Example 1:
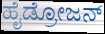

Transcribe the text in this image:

ಹೈಡ್ರೋಜನ್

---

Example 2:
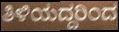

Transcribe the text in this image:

ತಿಳಿಯದ್ದರಿಂದ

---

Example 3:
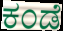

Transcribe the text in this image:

ಕಂಡೆ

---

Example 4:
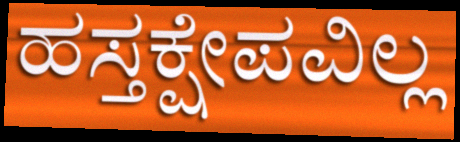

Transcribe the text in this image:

ಹಸ್ತಕ್ಷೇಪವಿಲ್ಲ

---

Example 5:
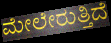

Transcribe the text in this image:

ಮೇಲೇರುತ್ತಿದೆ